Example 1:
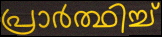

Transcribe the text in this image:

പ്രാർത്ഥിച്ച്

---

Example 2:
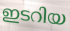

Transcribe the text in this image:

ഇടറിയ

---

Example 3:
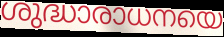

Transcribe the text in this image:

ശുദ്ധാരാധനയെ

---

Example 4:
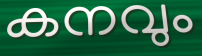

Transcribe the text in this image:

കനവും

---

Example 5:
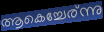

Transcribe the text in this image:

ആകെച്ചേര്ന്നു